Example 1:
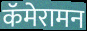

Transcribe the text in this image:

कॅमेरामन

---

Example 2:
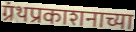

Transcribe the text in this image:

ग्रंथप्रकाशनाच्या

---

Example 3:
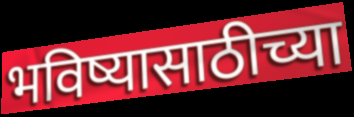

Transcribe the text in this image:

भविष्यासाठीच्या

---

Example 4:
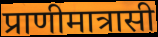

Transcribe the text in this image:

प्राणीमात्रासी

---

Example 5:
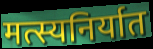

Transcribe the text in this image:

मत्स्यनिर्यात